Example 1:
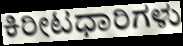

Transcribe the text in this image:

ಕಿರೀಟಧಾರಿಗಳು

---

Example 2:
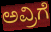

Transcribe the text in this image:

ಅವ್ರಿಗೆ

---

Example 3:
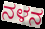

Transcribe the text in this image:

ನಳನ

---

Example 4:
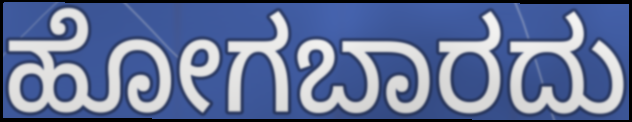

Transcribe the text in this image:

ಹೋಗಬಾರದು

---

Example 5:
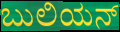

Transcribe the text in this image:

ಬುಲಿಯನ್